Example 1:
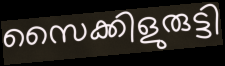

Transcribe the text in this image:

സൈക്കിളുരുട്ടി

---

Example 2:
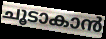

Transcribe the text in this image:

ചൂടാകാൻ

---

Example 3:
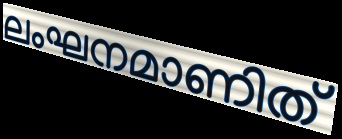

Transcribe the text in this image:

ലംഘനമാണിത്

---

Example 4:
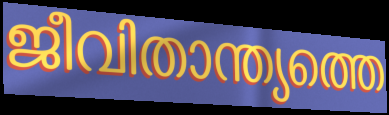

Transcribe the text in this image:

ജീവിതാന്ത്യത്തെ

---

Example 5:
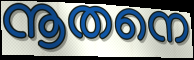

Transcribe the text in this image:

നൂതനെ